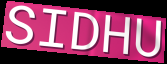
SIDHU